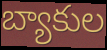
బ్యాకుల